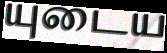
யுடைய